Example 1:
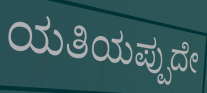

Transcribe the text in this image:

ಯತಿಯಪ್ಪುದೇ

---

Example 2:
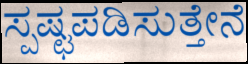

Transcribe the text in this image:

ಸ್ಪಷ್ಟಪಡಿಸುತ್ತೇನೆ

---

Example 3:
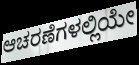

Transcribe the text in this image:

ಆಚರಣೆಗಳಲ್ಲಿಯೇ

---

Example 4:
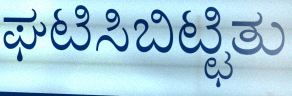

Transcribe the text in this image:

ಘಟಿಸಿಬಿಟ್ಟಿತು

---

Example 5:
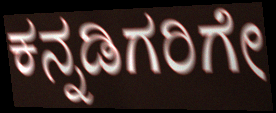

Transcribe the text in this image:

ಕನ್ನಡಿಗರಿಗೇ